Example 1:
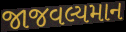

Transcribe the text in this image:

જાજવલ્યમાન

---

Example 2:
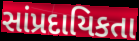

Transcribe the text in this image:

સાંપ્રદાયિકતા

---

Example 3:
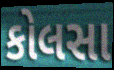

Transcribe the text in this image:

કોલસા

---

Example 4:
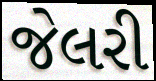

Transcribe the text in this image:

જેલરી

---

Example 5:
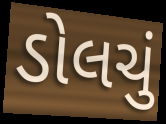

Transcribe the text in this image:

ડોલચું